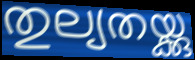
തുല്യതയ്ക്കു